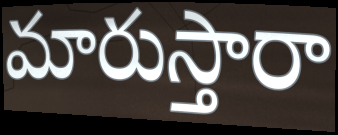
మారుస్తారా